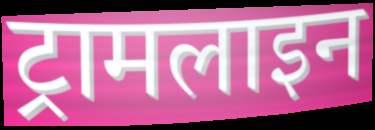
ट्रामलाइन